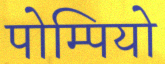
पोम्पियो